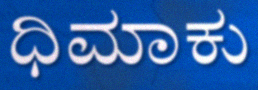
ಧಿಮಾಕು